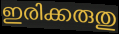
ഇരിക്കരുതു